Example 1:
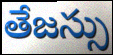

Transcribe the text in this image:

తేజస్సు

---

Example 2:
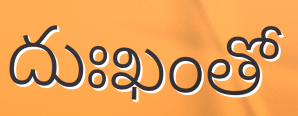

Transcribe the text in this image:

దుఃఖంతో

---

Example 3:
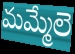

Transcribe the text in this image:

మమ్మేలె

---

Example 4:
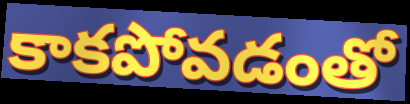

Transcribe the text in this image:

కాకపోవడంతో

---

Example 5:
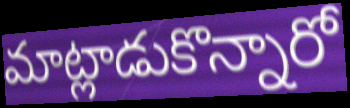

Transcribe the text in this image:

మాట్లాడుకొన్నారో